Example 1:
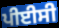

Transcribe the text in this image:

ਪੀਈਸੀ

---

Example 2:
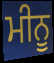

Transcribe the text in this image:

ਮੀਨੂ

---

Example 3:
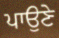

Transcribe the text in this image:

ਪਾਉਣੇ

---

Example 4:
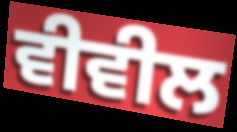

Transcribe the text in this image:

ਵੀਵੀਲ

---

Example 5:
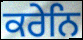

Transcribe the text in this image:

ਕਰੇਨਿ